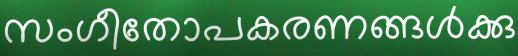
സംഗീതോപകരണങ്ങൾക്കു